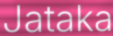
Jataka